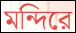
মন্দিরে